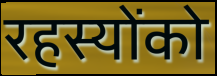
रहस्योंको